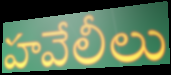
హవేలీలు